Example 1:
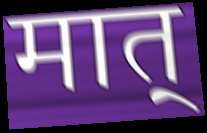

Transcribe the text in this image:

मात्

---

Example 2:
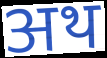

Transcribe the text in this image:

अथ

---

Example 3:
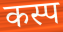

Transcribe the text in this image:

कस्प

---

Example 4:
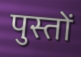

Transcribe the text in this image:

पुस्तों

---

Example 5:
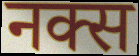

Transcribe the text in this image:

नक्स